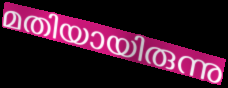
മതിയായിരുന്നു